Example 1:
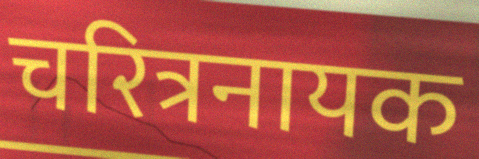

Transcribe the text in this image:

चरित्रनायक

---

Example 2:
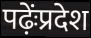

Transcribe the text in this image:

पढ़ेंःप्रदेश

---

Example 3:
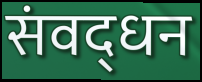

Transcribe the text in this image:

संवद्धन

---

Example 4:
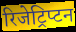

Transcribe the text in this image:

रिजेट्रिप्टन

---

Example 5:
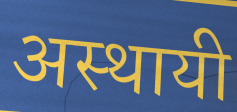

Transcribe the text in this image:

अस्थायी